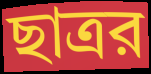
ছাত্রর